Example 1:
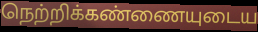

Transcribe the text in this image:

நெற்றிக்கண்ணையுடைய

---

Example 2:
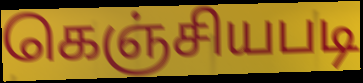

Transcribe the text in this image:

கெஞ்சியபடி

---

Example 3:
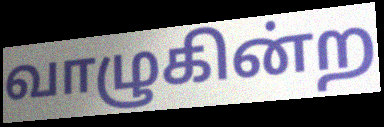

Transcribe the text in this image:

வாழுகின்ற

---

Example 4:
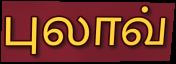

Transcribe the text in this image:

புலாவ்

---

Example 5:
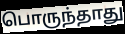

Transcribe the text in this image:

பொருந்தாது